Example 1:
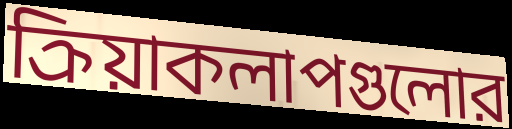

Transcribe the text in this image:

ক্রিয়াকলাপগুলোর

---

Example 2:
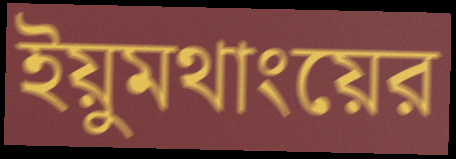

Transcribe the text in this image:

ইয়ুমথাংয়ের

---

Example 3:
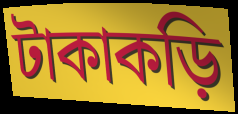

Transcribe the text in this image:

টাকাকড়ি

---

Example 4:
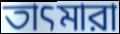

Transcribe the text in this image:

তাৎমারা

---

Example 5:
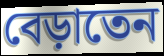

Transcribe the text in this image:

বেড়াতেন